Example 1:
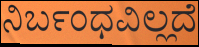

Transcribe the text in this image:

ನಿರ್ಬಂಧವಿಲ್ಲದೆ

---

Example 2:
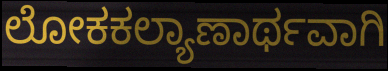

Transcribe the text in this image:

ಲೋಕಕಲ್ಯಾಣಾರ್ಥವಾಗಿ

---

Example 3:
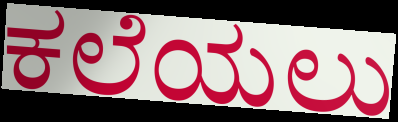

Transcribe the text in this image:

ಕಲೆಯಲು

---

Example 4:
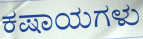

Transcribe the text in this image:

ಕಷಾಯಗಳು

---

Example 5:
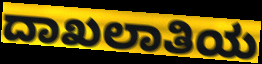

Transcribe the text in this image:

ದಾಖಲಾತಿಯ